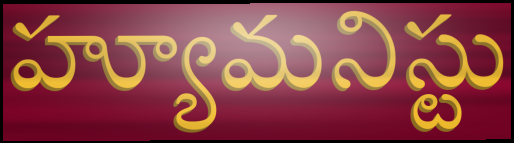
హ్యూమనిస్టు